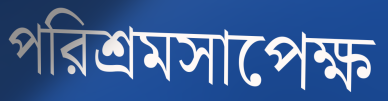
পরিশ্রমসাপেক্ষ